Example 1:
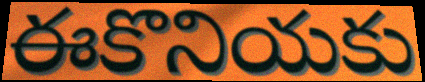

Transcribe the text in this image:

ఈకొనియకు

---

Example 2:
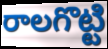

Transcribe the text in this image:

రాలగొట్టి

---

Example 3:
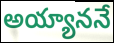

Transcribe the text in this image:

అయ్యాననే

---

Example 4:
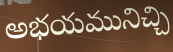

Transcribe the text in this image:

అభయమునిచ్చి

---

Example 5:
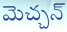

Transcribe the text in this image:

మెచ్చన్